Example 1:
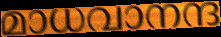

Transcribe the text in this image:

മാധവാനന്ദ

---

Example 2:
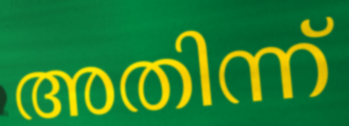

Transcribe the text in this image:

അതിന്ന്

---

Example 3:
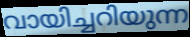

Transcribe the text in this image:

വായിച്ചറിയുന്ന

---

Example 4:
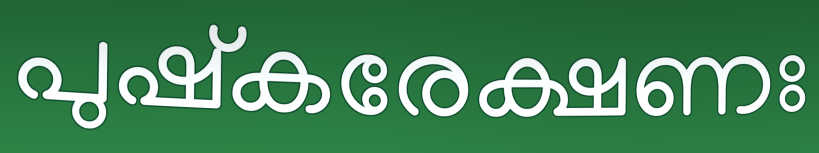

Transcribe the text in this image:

പുഷ്കരേക്ഷണഃ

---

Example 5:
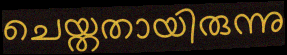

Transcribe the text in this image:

ചെയ്തതായിരുന്നു